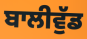
ਬਾਲੀਵੁੱਡ